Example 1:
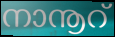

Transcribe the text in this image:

നാനൂറ്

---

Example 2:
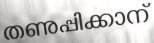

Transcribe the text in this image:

തണുപ്പിക്കാന്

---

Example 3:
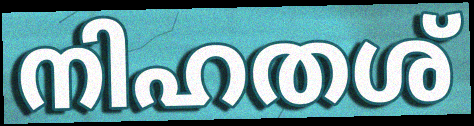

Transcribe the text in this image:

നിഹതശ്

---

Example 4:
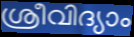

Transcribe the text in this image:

ശ്രീവിദ്യാം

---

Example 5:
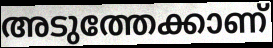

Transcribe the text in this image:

അടുത്തേക്കാണ്